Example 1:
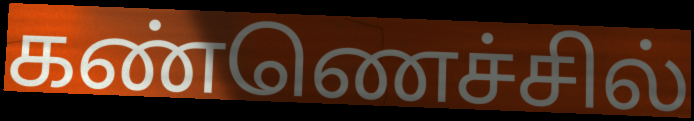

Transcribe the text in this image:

கண்ணெச்சில்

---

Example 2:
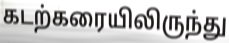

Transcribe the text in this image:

கடற்கரையிலிருந்து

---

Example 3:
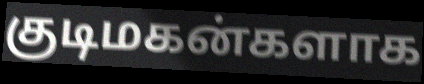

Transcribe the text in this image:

குடிமகன்களாக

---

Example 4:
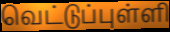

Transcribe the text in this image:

வெட்டுப்புள்ளி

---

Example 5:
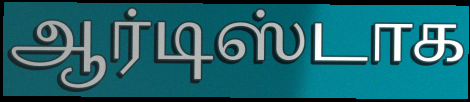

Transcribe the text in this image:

ஆர்டிஸ்டாக